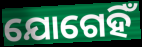
ଯୋଗେହିଁ